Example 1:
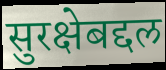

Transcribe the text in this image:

सुरक्षेबद्दल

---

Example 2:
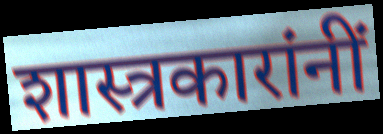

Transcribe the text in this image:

शास्त्रकारांनीं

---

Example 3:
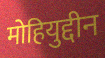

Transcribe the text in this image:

मोहियुद्दीन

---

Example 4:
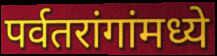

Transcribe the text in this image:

पर्वतरांगांमध्ये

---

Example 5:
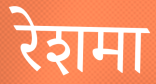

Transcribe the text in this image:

रेशमा